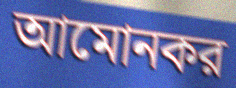
আমোনকর